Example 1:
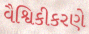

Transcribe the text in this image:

વૈશ્વિકીકરણે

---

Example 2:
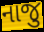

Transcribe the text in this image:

નાજુ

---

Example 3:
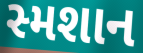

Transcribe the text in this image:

સ્મશાન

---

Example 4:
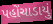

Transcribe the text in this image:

પહોંચાડાયું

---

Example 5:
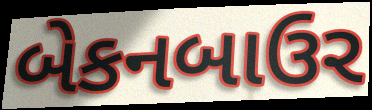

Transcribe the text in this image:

બેકનબાઉર